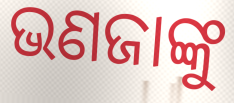
ଭଣଜାଙ୍କୁ